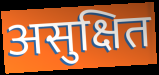
असुक्षित